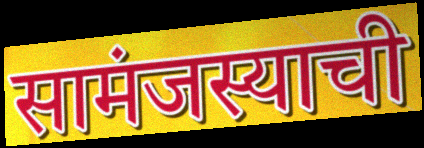
सामंजस्याची